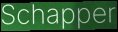
Schapper